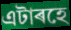
এটাৰহে